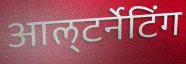
आल्टर्नेटिंग